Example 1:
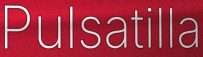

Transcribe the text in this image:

Pulsatilla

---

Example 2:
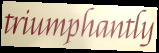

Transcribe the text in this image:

triumphantly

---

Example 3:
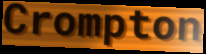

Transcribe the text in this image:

Crompton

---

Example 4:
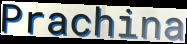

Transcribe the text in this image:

Prachina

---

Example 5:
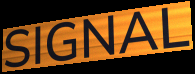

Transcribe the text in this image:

SIGNAL